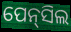
ପେନ୍‍ସିଲ